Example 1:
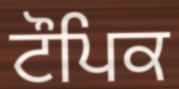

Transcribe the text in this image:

ਟੌਪਿਕ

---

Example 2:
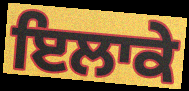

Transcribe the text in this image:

ਇਲਾਕੇ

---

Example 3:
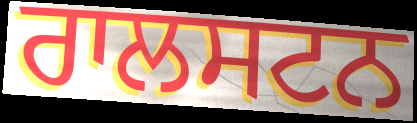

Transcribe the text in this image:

ਰਾਲਸਟਨ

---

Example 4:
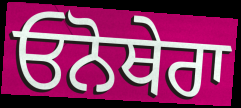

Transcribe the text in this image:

ਓਨੋਥੇਰਾ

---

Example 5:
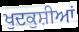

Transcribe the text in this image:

ਖੁਦਕੁਸ਼ੀਆਂ